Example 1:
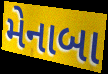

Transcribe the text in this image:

મેનાબા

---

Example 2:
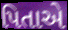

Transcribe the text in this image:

પિતાએ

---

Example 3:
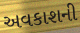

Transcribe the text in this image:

અવકાશની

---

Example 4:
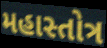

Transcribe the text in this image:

મહાસ્તોત્ર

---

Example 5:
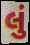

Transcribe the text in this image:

લું